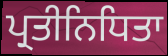
ਪ੍ਰਤੀਨਿਧਿਤਾ